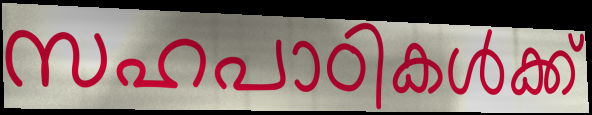
സഹപാഠികൾക്ക്